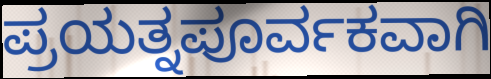
ಪ್ರಯತ್ನಪೂರ್ವಕವಾಗಿ